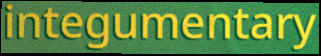
integumentary